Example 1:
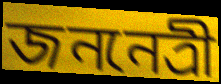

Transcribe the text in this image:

জননেত্রী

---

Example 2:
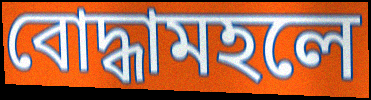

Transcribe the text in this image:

বোদ্ধামহলে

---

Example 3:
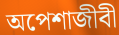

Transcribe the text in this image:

অপেশাজীবী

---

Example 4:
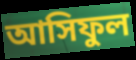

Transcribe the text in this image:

আসিফুল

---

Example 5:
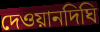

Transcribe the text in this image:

দেওয়ানদিঘি